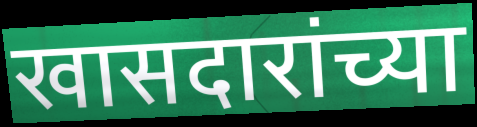
खासदारांच्या